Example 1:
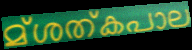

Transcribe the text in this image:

മ്ശത്കപാല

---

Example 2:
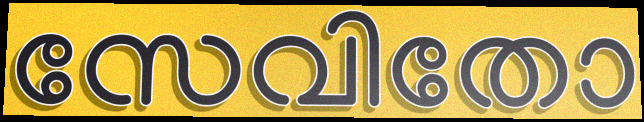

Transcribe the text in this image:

സേവിതോ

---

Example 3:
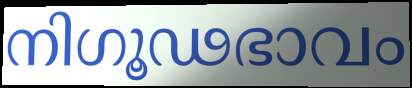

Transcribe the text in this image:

നിഗൂഢഭാവം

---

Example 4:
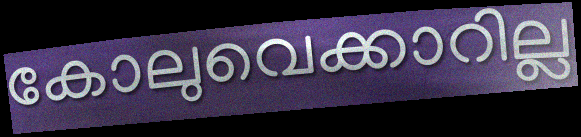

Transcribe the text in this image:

കോലുവെക്കാറില്ല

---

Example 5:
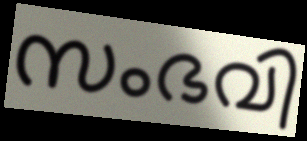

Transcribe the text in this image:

സംഭവി